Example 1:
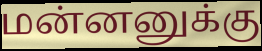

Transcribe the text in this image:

மன்னனுக்கு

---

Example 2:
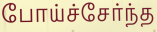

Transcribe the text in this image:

போய்ச்சேர்ந்த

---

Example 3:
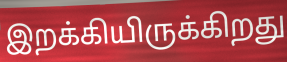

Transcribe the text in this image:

இறக்கியிருக்கிறது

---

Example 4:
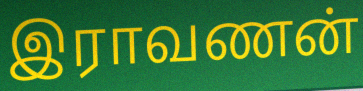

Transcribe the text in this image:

இராவணன்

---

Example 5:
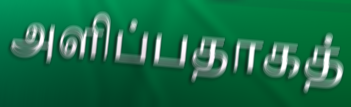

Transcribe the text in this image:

அளிப்பதாகத்